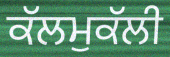
ਕੱਲਮੁਕੱਲੀ